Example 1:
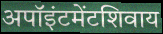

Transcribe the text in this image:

अपॉइंटमेंटशिवाय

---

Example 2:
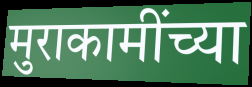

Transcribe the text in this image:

मुराकामींच्या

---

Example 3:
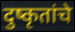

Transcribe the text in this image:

दुष्कृतांचे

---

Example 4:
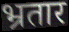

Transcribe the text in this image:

भ्रतार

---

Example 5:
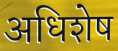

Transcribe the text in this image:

अधिशेष